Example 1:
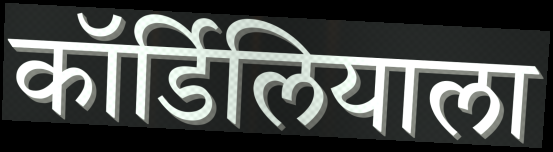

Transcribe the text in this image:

कॉर्डिलियाला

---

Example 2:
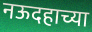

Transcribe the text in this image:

नऊदहाच्या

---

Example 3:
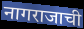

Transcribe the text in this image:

नागराजाची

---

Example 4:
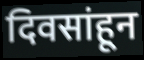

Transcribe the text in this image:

दिवसांहून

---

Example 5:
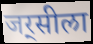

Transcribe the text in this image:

जर्सीला